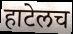
हाटेलच